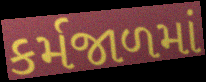
કર્મજાળમાં